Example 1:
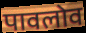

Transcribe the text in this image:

पावलोव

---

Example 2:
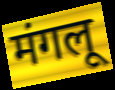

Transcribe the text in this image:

मंगलू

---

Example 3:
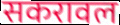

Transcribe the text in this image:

सकरावल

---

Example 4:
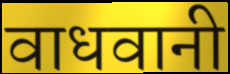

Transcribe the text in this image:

वाधवानी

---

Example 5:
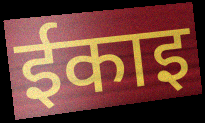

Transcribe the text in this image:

ईकाइ